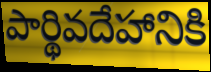
పార్థివదేహానికి